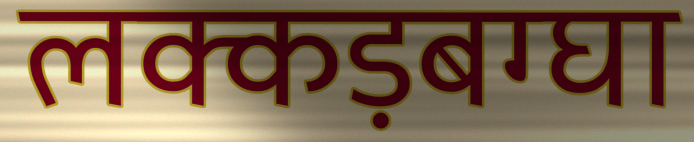
लक्कड़बग्घा